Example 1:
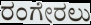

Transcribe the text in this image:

ರಂಗೇರಲು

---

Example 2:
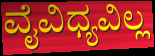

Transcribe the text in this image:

ವೈವಿಧ್ಯವಿಲ್ಲ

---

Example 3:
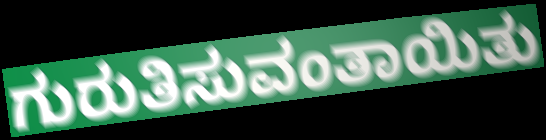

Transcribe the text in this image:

ಗುರುತಿಸುವಂತಾಯಿತು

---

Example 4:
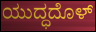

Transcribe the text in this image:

ಯುದ್ಧದೊಳ್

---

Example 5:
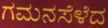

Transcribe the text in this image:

ಗಮನಸೆಳೆದ